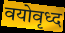
वयोवृध्द